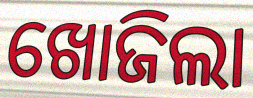
ଖୋଜିଲା